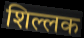
शिल्लक